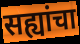
सह्यांचा